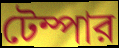
টেম্পার